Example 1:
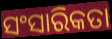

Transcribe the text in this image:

ସଂସାରିକତା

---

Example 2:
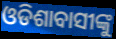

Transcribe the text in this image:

ଓଡିଶାବାସୀଙ୍କୁ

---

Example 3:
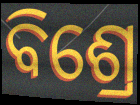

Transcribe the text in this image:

ବିଶ୍ରେ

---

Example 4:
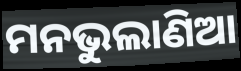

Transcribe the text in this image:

ମନଭୁଲାଣିଆ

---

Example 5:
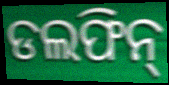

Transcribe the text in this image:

ଡଲଫିନ୍